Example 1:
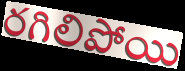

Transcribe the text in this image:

రగిలిపోయి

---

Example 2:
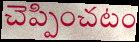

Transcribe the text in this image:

చెప్పించటం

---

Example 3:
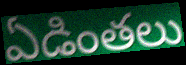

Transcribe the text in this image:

ఏడింతలు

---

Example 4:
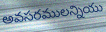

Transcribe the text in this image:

అవసరములన్నియు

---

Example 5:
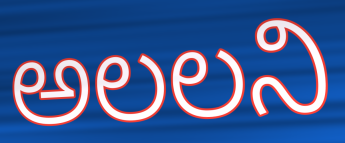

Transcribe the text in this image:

అలలని